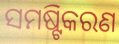
ସମଷ୍ଟିକରଣ